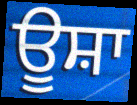
ਊਸ਼ਾ